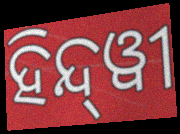
ହିନ୍ଦ୍‍ୱୀ